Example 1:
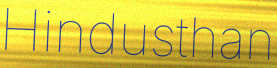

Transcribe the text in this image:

Hindusthan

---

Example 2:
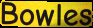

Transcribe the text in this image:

Bowles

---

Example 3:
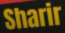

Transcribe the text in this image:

Sharir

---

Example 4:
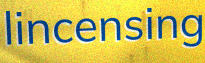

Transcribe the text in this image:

lincensing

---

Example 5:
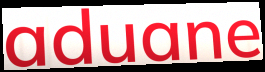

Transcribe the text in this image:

aduane